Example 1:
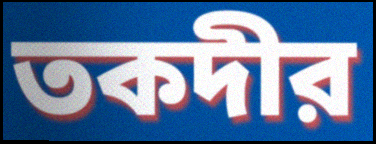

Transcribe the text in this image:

তকদীর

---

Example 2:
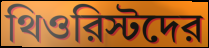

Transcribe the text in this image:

থিওরিস্টদের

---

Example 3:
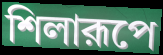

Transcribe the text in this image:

শিলারূপে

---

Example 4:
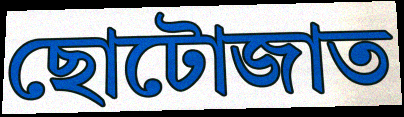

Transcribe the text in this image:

ছোটোজাত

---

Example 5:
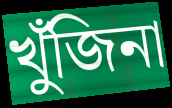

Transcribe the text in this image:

খুঁজিনা